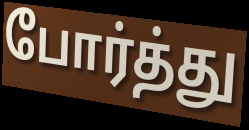
போர்த்து